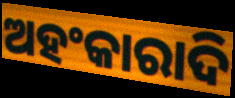
ଅହଂକାରାଦି